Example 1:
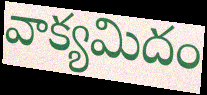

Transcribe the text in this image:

వాక్యమిదం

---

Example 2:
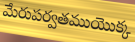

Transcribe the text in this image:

మేరుపర్వతముయొక్క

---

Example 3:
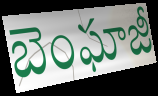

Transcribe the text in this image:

బెంఘాజీ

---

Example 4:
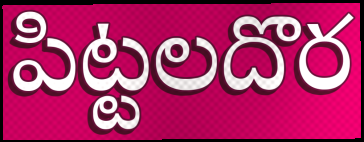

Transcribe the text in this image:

పిట్టలదొర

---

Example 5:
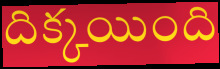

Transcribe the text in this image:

దిక్కయింది